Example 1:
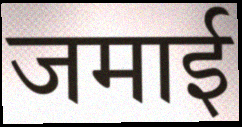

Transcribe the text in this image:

जमाई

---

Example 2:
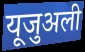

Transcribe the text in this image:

यूजुअली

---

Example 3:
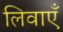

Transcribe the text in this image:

लिवाएँ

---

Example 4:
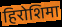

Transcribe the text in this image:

हिरोशिमा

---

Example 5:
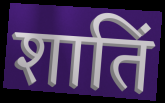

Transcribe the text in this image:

शातिं